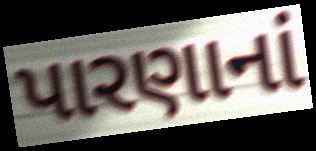
પારણાનાં